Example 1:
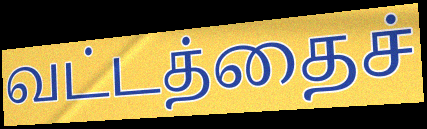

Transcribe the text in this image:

வட்டத்தைச்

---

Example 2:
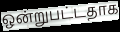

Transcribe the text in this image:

ஒன்றுபட்டதாக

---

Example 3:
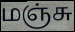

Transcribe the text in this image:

மஞ்சு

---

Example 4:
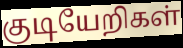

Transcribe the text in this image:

குடியேறிகள்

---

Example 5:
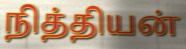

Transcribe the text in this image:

நித்தியன்